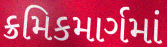
ક્રમિકમાર્ગમાં